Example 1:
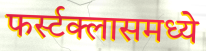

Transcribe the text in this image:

फर्स्टक्लासमध्ये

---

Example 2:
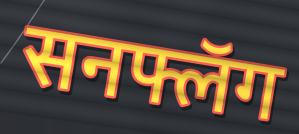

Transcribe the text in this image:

सनफ्लॅग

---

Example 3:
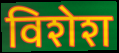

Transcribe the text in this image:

विशेश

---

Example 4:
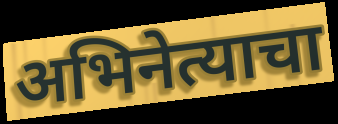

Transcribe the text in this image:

अभिनेत्याचा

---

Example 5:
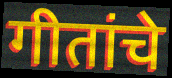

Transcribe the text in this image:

गीतांचे